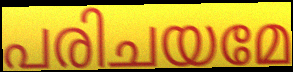
പരിചയമേ